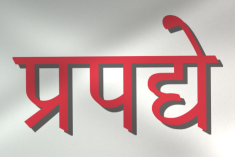
प्रपद्ये